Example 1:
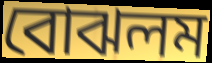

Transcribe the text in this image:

বোঝলম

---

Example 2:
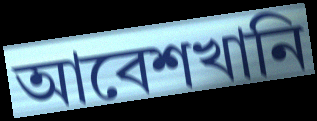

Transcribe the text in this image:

আবেশখানি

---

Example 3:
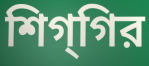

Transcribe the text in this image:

শিগ্‌গির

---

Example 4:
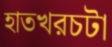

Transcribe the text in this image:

হাতখরচটা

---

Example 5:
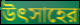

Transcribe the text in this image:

উৎসাহের